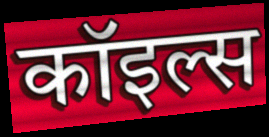
कॉइल्स